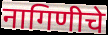
नागिणीचे